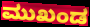
ಮುಖಂಡ